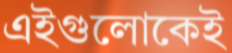
এইগুলোকেই